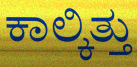
ಕಾಲ್ಕಿತ್ತು